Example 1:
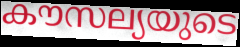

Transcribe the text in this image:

കൗസല്യയുടെ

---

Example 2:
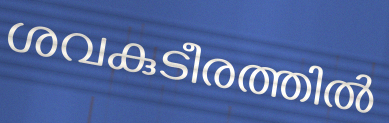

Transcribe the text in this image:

ശവകുടീരത്തിൽ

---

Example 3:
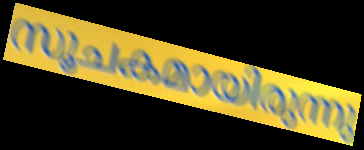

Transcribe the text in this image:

സൂചകമായിരുന്നു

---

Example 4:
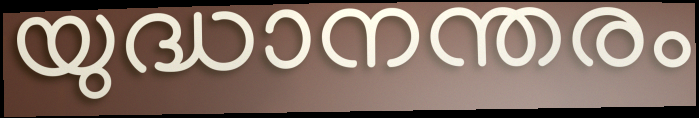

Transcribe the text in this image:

യുദ്ധാനന്തരം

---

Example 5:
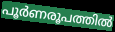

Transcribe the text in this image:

പൂർണരൂപത്തിൽ